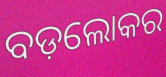
ବଡ଼ଲୋକର